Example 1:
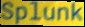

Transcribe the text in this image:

Splunk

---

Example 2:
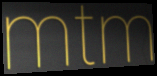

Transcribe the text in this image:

mtm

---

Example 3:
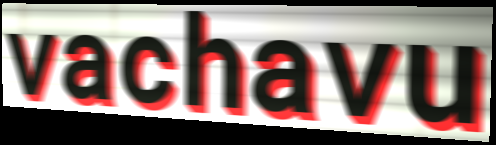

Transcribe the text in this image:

vachavu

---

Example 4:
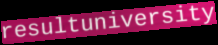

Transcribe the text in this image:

resultuniversity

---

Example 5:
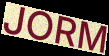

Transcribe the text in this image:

JORM